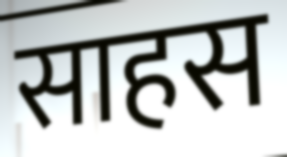
साहस